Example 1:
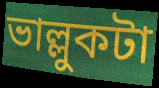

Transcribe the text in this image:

ভাল্লুকটা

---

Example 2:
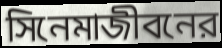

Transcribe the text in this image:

সিনেমাজীবনের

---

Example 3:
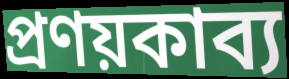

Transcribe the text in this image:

প্রণয়কাব্য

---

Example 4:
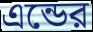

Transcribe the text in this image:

এন্ডের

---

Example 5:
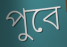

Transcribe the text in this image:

পুবে